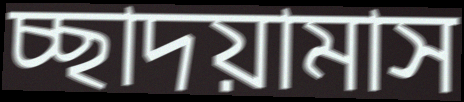
চ্ছাদয়ামাস